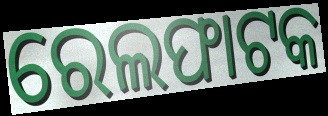
ରେଲଫାଟକ